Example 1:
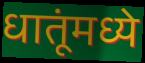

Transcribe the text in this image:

धातूंमध्ये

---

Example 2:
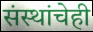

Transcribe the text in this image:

संस्थांचेही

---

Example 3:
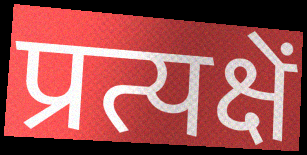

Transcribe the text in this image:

प्रत्यक्षें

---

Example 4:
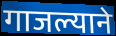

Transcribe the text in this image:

गाजल्याने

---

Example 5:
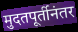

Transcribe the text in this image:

मुदतपूर्तीनंतर